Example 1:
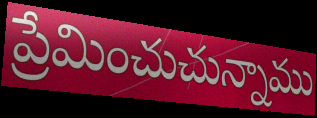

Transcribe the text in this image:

ప్రేమించుచున్నాము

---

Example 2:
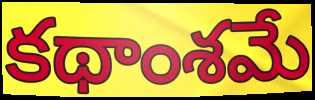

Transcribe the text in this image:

కథాంశమే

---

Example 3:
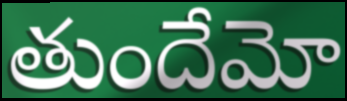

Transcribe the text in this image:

తుందేమో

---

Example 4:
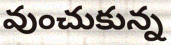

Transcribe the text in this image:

వుంచుకున్న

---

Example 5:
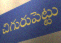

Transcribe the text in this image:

చిగురుపెట్టు